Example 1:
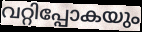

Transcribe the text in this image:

വറ്റിപ്പോകയും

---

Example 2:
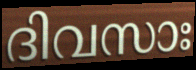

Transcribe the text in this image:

ദിവസാഃ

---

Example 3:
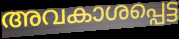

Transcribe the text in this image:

അവകാശപ്പെട്ട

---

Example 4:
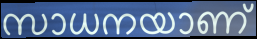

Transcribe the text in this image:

സാധനയാണ്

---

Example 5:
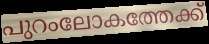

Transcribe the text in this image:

പുറംലോകത്തേക്ക്